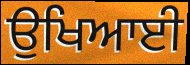
ਉਖਿਆਈ